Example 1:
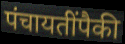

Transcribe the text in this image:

पंचायतींपैकी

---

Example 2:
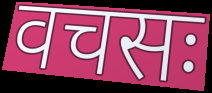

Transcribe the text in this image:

वचसः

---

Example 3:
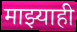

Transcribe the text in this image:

माझ्याही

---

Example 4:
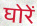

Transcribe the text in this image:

घोरें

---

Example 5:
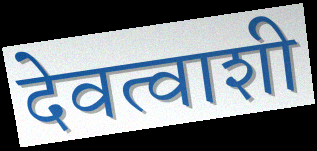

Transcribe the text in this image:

देवत्वाशी